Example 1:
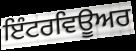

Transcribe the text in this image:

ਇੰਟਰਵਿਊਅਰ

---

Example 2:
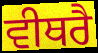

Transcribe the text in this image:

ਵੀਥਰੈ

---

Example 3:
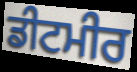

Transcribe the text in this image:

ਡੀਟਮੀਰ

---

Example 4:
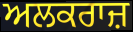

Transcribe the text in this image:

ਅਲਕਰਾਜ਼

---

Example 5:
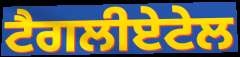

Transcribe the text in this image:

ਟੈਗਲੀਏਟੇਲ